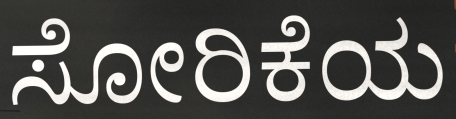
ಸೋರಿಕೆಯ